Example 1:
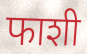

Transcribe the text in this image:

फाशी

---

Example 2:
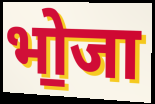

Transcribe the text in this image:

भो॒जा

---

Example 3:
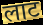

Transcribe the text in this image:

लाट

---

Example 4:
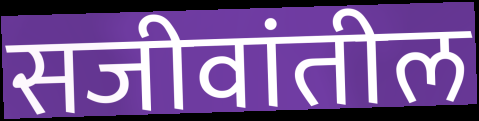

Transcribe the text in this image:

सजीवांतील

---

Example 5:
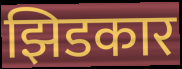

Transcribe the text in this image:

झिडकार